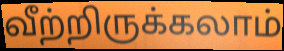
வீற்றிருக்கலாம்